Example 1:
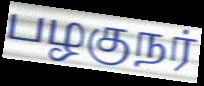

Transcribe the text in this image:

பழகுநர்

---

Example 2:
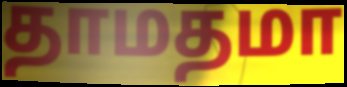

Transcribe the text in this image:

தாமதமா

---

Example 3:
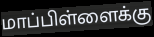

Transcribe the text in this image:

மாப்பிள்ளைக்கு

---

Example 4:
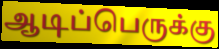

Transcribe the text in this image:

ஆடிப்பெருக்கு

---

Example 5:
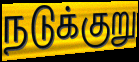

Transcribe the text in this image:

நடுக்குறு